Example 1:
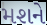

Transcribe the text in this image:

મશને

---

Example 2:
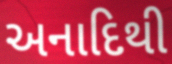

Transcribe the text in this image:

અનાદિથી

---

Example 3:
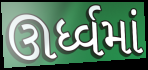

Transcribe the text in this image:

ઊર્ધ્વમાં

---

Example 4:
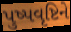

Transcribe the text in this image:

પુષ્પવૃષ્ટિને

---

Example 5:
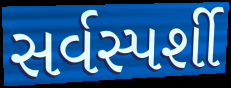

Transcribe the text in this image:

સર્વસ્પર્શી